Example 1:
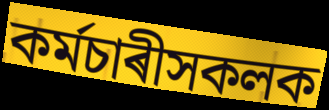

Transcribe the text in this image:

কৰ্মচাৰীসকলক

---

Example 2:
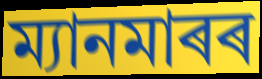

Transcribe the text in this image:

ম্যানমাৰৰ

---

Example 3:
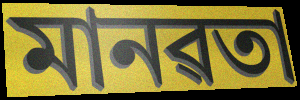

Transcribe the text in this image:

মানৱতা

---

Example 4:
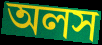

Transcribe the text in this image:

অলস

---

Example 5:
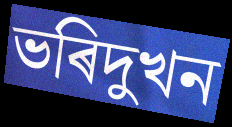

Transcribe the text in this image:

ভৰিদুখন